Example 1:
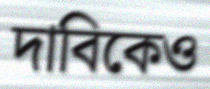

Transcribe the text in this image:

দাবিকেও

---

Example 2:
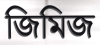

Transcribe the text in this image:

জিমিজ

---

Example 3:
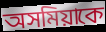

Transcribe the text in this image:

অসমিয়াকে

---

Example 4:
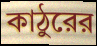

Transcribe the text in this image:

কাঠুরের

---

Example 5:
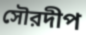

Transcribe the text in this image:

সৌরদীপ